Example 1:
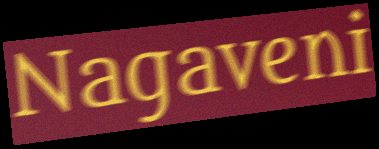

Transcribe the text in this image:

Nagaveni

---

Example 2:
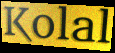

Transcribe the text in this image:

Kolal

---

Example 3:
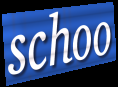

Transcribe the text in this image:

schoo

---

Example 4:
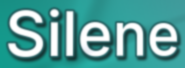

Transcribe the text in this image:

Silene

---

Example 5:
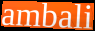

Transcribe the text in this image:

ambali